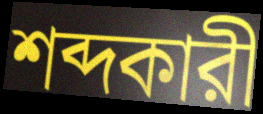
শব্দকারী